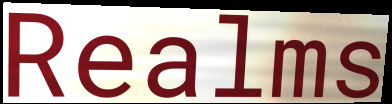
Realms